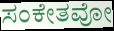
ಸಂಕೇತವೋ